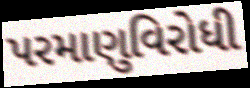
પરમાણુવિરોધી